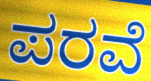
ಪರವೆ